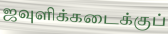
ஜவுளிக்கடைக்குப்